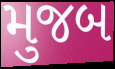
મુજબ